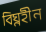
বিঘ্নহীন